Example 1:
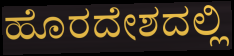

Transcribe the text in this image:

ಹೊರದೇಶದಲ್ಲಿ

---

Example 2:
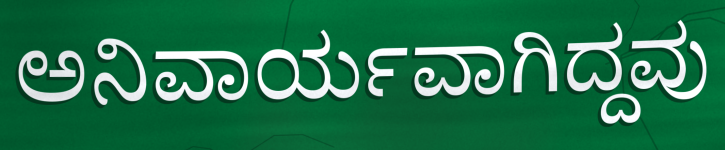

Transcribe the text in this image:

ಅನಿವಾರ್ಯವಾಗಿದ್ದವು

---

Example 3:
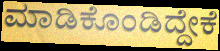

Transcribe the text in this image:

ಮಾಡಿಕೊಂಡಿದ್ದೇಕೆ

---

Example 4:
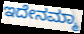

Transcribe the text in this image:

ಇದೇನಮ್ಮಾ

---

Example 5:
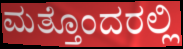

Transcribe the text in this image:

ಮತ್ತೊಂದರಲ್ಲಿ